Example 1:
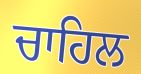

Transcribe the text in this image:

ਚਾਹਿਲ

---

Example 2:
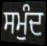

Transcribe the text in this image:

ਸਮੁੰਦ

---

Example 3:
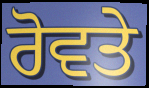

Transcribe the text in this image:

ਰੋਵਤੇ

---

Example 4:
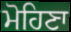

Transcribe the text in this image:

ਮੋਹਿਣਾ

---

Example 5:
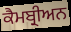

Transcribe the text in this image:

ਕੈਮਬ੍ਰੀਅਨ